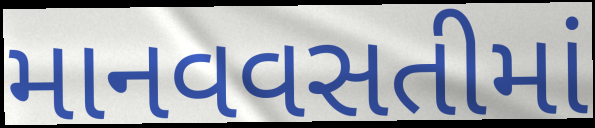
માનવવસતીમાં